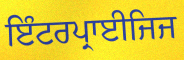
ਇੰਟਰਪ੍ਰਾਈਜਿਜ